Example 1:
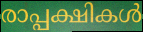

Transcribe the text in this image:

രാപ്പക്ഷികൾ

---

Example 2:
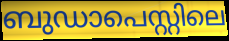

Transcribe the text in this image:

ബുഡാപെസ്റ്റിലെ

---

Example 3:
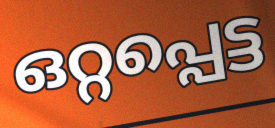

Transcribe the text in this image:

ഒറ്റപ്പെട്ട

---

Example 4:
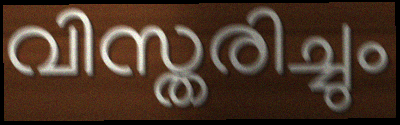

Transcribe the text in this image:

വിസ്തരിച്ചും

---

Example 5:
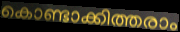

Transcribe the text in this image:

കൊണ്ടാക്കിത്തരാം